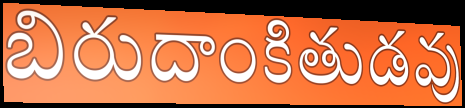
బిరుదాంకితుడవు